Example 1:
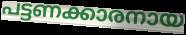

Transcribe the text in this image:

പട്ടണക്കാരനായ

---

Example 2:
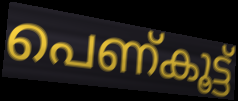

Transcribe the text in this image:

പെണ്കൂട്ട്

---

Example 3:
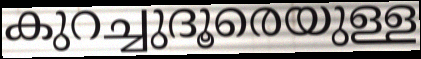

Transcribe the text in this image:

കുറച്ചുദൂരെയുള്ള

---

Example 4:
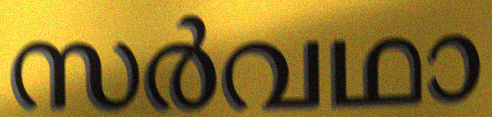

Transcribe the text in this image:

സർവഥാ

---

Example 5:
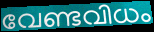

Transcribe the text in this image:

വേണ്ടവിധം